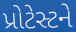
પ્રોટેસ્ટને